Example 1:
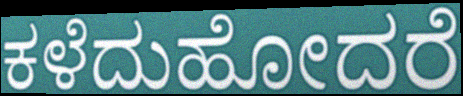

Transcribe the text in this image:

ಕಳೆದುಹೋದರೆ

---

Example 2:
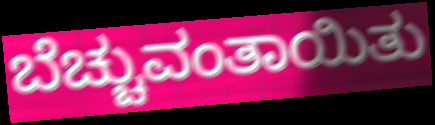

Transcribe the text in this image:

ಬೆಚ್ಚುವಂತಾಯಿತು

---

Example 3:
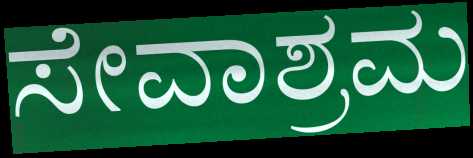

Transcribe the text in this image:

ಸೇವಾಶ್ರಮ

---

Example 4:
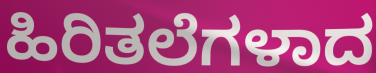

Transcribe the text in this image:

ಹಿರಿತಲೆಗಳಾದ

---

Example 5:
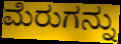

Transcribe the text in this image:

ಮೆರುಗನ್ನು